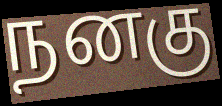
நனகு